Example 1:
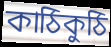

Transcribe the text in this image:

কাঠিকুঠি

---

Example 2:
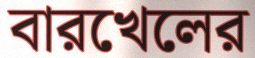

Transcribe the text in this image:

বারখেলের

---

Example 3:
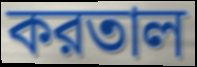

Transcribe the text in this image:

করতাল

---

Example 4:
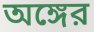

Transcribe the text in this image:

অঙ্গের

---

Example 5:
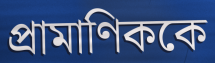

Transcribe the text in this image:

প্রামাণিককে